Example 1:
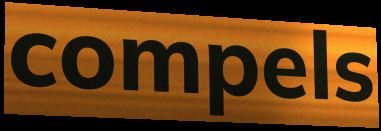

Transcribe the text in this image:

compels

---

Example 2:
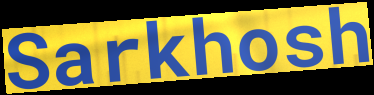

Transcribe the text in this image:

Sarkhosh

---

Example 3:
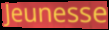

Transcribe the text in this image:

Jeunesse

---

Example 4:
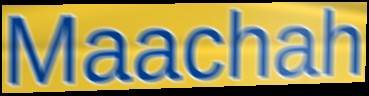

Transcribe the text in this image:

Maachah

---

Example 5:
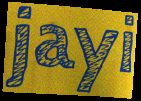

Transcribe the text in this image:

jayi